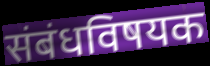
संबंधविषयक